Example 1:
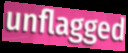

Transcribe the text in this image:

unflagged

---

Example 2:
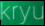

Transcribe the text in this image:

kryu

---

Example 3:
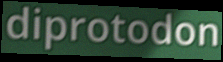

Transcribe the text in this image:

diprotodon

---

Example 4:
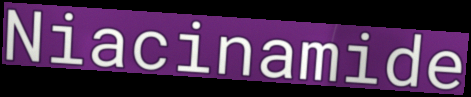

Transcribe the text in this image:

Niacinamide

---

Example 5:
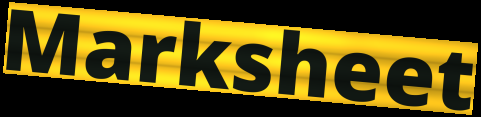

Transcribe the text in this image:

Marksheet